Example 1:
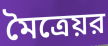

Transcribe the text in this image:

মৈত্রেয়র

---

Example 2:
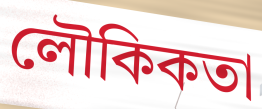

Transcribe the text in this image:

লৌকিকতা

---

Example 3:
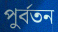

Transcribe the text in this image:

পুর্বতন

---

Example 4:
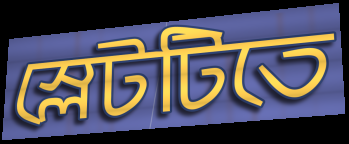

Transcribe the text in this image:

স্লেটটিতে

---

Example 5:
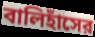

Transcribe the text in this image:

বালিহাঁসের